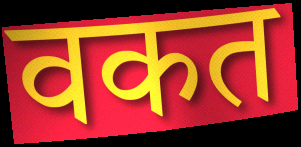
वकत